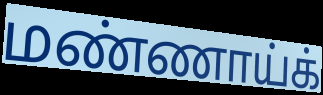
மண்ணாய்க்